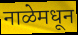
नाळेमधून